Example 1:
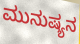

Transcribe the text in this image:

ಮುನುಷ್ಯನ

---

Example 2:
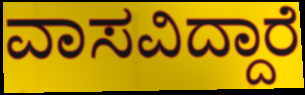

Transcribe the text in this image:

ವಾಸವಿದ್ದಾರೆ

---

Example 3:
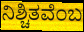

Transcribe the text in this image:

ನಿಶ್ಚಿತವೆಂಬ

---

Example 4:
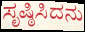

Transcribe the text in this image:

ಸೃಷ್ಠಿಸಿದನು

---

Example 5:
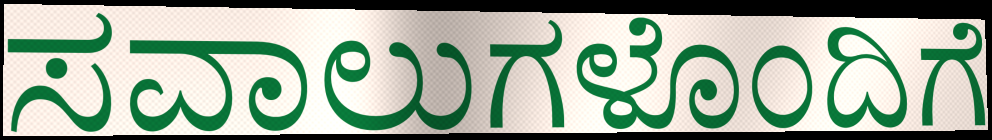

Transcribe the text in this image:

ಸವಾಲುಗಳೊಂದಿಗೆ